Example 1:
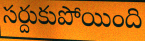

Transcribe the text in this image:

సర్దుకుపోయింది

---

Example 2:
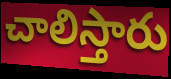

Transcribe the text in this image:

చాలిస్తారు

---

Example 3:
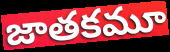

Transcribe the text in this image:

జాతకమూ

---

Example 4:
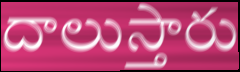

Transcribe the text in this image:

దాలుస్తారు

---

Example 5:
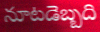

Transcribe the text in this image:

నూటడెబ్బది